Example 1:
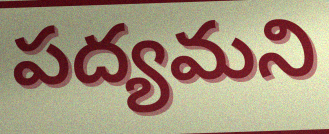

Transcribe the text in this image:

పద్యమని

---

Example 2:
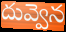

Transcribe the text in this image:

దువ్వెన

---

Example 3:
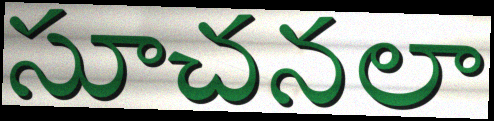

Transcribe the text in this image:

సూచనలా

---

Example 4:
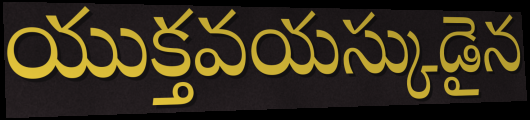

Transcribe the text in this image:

యుక్తవయస్కుడైన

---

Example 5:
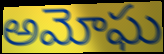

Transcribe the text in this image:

అమోఘ